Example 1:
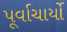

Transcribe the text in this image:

પૂર્વાચાર્યો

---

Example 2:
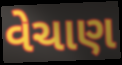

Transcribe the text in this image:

વેચાણ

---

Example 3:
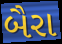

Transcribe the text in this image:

બૈરા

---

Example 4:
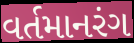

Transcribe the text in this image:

વર્તમાનરંગ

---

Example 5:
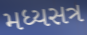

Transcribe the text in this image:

મધ્યસત્ર